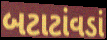
બટાટાંવડાં